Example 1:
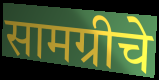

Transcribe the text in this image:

सामग्रीचे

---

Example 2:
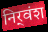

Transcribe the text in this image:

निर्वंश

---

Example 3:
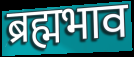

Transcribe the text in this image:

ब्रह्मभाव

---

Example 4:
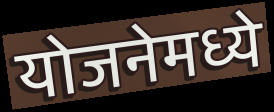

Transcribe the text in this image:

योजनेमध्ये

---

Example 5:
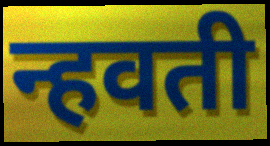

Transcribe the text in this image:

न्हवती